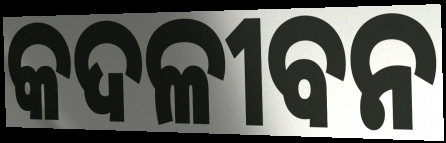
କଦଳୀବନ